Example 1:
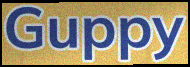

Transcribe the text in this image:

Guppy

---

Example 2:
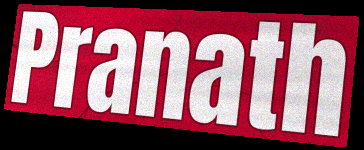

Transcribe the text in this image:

Pranath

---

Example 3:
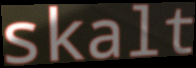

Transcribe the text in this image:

skalt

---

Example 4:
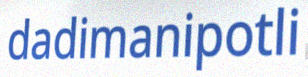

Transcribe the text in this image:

dadimanipotli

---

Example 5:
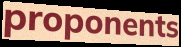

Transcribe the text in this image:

proponents